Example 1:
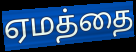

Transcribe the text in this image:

ஏமத்தை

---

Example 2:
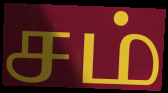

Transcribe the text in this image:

சம்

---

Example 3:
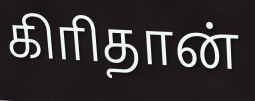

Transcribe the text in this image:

கிரிதான்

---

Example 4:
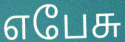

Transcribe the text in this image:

எபேசு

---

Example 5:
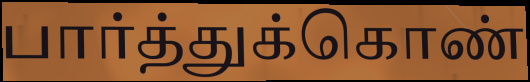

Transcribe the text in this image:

பார்த்துக்கொண்